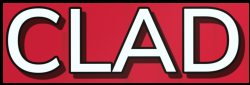
CLAD